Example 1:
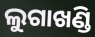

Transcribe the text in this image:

ଲୁଗାଖଣ୍ଡି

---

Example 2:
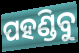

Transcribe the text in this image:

ପହଣ୍ଡିବୁ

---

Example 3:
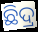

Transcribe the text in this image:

ଛିଦ୍ର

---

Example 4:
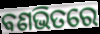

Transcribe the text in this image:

ବଣଭିତରେ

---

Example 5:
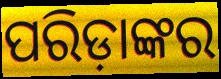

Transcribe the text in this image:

ପରିଡ଼ାଙ୍କର